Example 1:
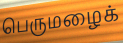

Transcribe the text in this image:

பெருமழைக்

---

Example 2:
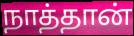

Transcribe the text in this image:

நாத்தான்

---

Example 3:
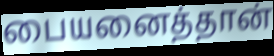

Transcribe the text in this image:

பையனைத்தான்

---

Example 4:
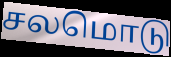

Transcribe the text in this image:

சலமொடு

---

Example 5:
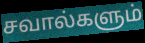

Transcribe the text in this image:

சவால்களும்